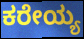
ಕರೇಯ್ಯ